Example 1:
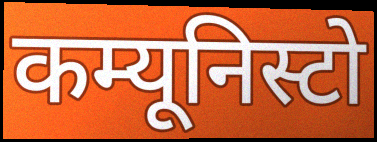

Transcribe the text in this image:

कम्यूनिस्टो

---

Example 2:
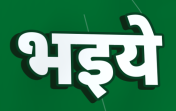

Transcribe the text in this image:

भइये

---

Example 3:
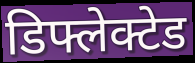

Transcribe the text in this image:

डिफ्लेक्टेड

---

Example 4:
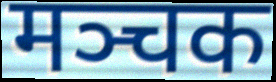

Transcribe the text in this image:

मञ्चक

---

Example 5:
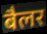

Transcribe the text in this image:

बैलर